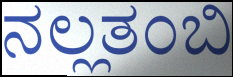
ನಲ್ಲತಂಬಿ